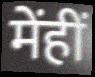
मेंहीं